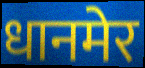
धानमेर